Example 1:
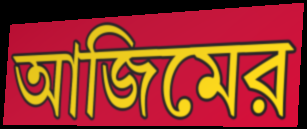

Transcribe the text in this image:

আজিমের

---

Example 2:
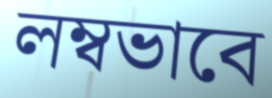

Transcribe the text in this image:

লম্বভাবে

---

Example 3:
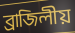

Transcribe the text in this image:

ব্রাজিলীয়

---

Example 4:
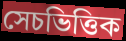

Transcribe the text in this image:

সেচভিত্তিক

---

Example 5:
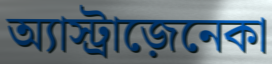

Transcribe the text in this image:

অ্যাস্ট্রাজ়েনেকা